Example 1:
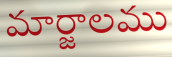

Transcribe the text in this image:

మార్జాలము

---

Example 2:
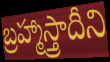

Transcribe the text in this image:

బ్రహ్మాస్త్రాదీని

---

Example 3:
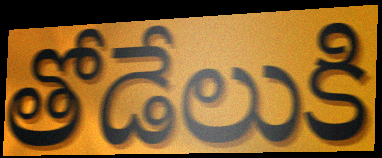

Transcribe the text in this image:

తోడేలుకి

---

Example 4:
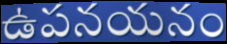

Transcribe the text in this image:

ఉపనయనం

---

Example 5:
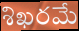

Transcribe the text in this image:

శిఖరమే